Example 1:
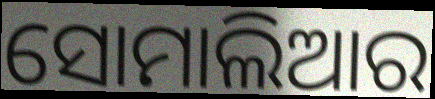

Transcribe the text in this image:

ସୋମାଲିଆର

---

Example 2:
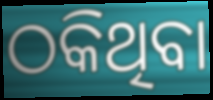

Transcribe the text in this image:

ଠକିଥିବା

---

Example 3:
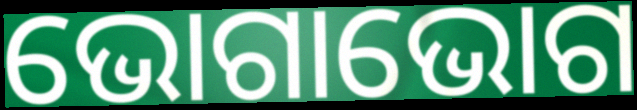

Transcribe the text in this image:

ଭୋଗାଭୋଗ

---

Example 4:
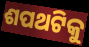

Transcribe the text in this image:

ଶପଥଟିକୁ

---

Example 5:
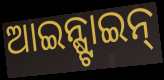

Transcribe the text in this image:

ଆଇନ୍ଷ୍ଟାଇନ୍